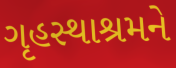
ગૃહસ્થાશ્રમને